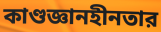
কাণ্ডজ্ঞানহীনতার